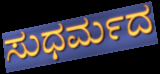
ಸುಧರ್ಮದ